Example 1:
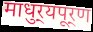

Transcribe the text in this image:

माधुर्यपूर्ण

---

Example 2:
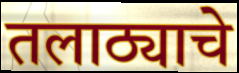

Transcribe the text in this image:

तलाठ्याचे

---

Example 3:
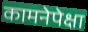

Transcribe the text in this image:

कामनेपेक्षा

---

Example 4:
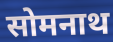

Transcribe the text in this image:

सोमनाथ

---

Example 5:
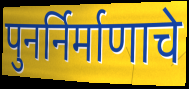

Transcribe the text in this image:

पुनर्निर्माणाचे